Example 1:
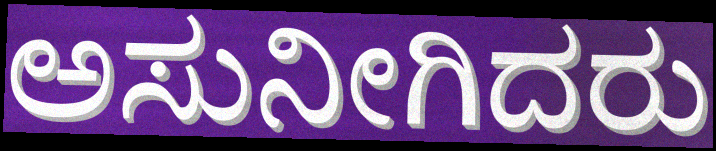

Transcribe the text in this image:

ಅಸುನೀಗಿದರು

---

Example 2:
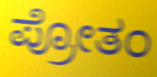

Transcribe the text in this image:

ಪ್ರೋತಂ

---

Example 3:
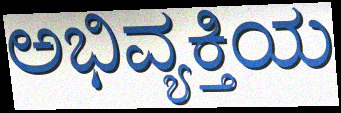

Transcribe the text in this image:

ಅಭಿವ್ಯಕ್ತಿಯ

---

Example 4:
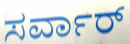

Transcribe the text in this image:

ಸರ್ವಾರ್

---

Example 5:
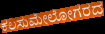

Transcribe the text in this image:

ಕಲಸುಮೇಲೋಗರದ